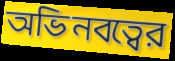
অভিনবত্বের